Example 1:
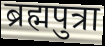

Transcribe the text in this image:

ब्रह्मपुत्रा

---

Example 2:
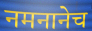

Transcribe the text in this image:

नमनानेच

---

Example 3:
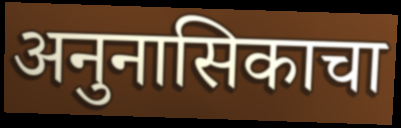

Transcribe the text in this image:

अनुनासिकाचा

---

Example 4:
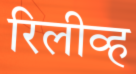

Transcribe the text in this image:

रिलीव्ह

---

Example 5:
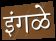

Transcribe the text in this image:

इंगळे